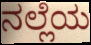
ನಲ್ಲೆಯ